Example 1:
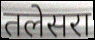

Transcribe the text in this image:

तलेसरा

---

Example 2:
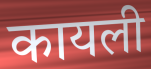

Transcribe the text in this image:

कायली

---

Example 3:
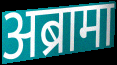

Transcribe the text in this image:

अब्रामा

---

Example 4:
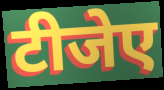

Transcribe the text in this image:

टीजेए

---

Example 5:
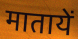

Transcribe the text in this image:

मातायें